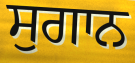
ਸੁਗਾਨ